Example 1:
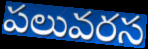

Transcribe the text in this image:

పలువరస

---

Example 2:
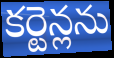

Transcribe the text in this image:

కర్టెన్లను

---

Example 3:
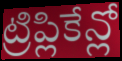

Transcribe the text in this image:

ట్రిప్లికేన్లో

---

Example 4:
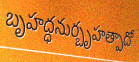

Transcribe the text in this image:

బృహద్ధనుర్బృహత్పాదో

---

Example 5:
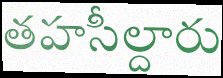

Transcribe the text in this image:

తహసీల్దారు